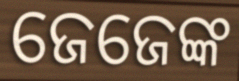
ଜେଜେଙ୍କ